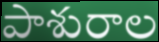
పాశురాల